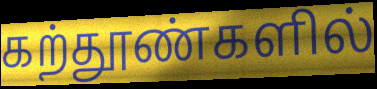
கற்தூண்களில்